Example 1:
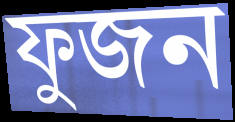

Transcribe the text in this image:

ফুজন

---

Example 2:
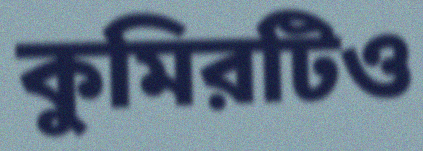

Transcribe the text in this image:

কুমিরটিও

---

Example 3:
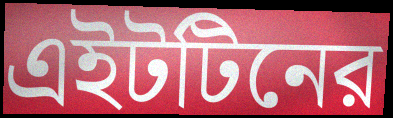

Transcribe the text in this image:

এইটটিনের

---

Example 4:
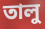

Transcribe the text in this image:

তালু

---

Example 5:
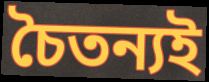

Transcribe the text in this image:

চৈতন্যই